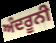
ਅੰਦਰੂਨੀ